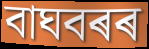
বাঘবৰৰ